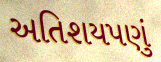
અતિશયપણું